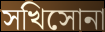
সখিসোনা